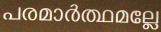
പരമാർത്ഥമല്ലേ